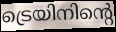
ട്രെയിനിന്റെ